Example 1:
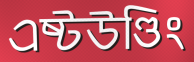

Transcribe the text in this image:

এষ্টউণ্ডিং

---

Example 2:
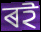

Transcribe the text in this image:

ৰই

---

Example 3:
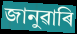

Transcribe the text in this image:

জানুৱাৰি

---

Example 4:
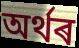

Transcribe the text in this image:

অৰ্থৰ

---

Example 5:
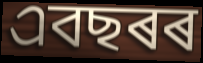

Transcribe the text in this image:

এবছৰৰ